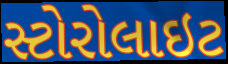
સ્ટોરોલાઇટ